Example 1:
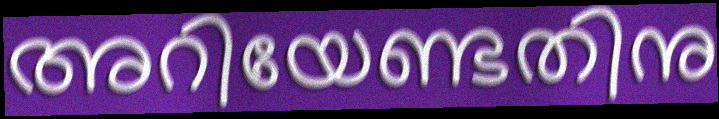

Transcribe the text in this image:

അറിയേണ്ടതിനു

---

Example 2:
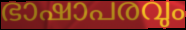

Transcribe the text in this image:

ഭാഷാപരവും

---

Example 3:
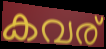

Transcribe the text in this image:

കവര്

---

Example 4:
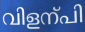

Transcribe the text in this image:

വിളന്പി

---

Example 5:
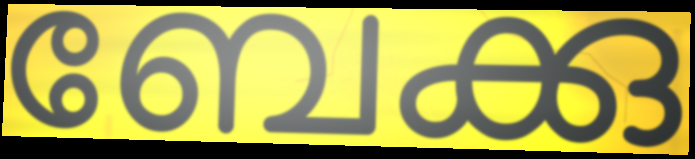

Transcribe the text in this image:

ബേക്കു